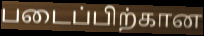
படைப்பிற்கான